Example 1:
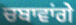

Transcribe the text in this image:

ਚਬਾਵਾਂਗੇ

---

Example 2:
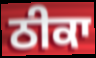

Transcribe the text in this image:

ਠੀਕਾ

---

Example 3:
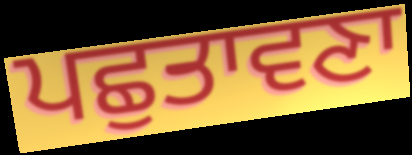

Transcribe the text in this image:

ਪਛੁਤਾਵਣਾ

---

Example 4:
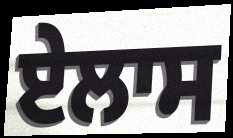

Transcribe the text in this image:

ਏਲਾਸ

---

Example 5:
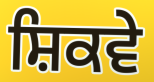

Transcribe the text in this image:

ਸ਼ਿਕਵੇ